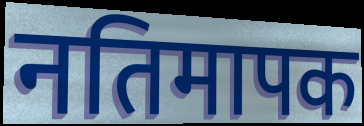
नतिमापक